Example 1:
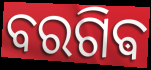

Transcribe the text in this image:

ବରଗିଵ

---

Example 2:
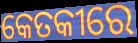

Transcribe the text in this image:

କେତକୀରେ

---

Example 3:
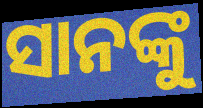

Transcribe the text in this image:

ସାନଙ୍କୁ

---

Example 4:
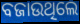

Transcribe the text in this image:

ବଜାଉଥିଲେ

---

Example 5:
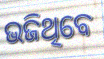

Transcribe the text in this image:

ଭଜିଥିବେ